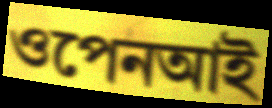
ওপেনআই